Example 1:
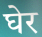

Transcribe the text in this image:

घेर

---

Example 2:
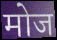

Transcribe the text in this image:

मोज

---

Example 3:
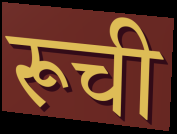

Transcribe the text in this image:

रूची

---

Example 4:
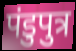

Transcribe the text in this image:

पंडुपुत्र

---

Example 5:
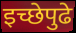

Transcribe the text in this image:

इच्छेपुढे